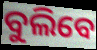
ବୁଲିବେ